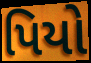
પિયો